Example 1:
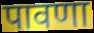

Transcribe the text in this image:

पावणा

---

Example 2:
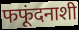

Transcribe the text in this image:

फफूंदनाशी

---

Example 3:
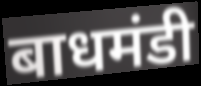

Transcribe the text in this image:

बाधमंडी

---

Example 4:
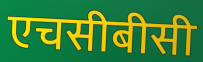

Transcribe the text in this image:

एचसीबीसी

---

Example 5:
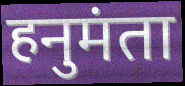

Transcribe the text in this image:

हनुमंता